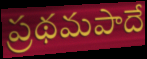
ప్రథమపాదే